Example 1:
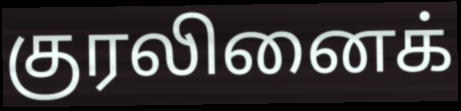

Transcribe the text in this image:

குரலினைக்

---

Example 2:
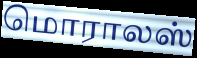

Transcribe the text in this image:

மொராலஸ்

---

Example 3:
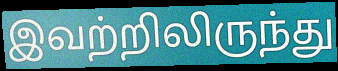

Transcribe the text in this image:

இவற்றிலிருந்து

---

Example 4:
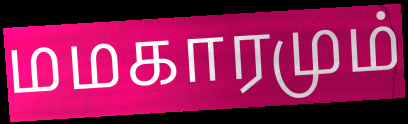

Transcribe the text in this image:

மமகாரமும்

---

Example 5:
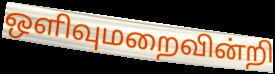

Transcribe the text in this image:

ஒளிவுமறைவின்றி